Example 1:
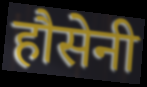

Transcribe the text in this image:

हौसेनी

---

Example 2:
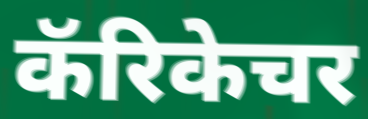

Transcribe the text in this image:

कॅरिकेचर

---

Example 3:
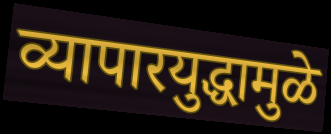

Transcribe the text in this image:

व्यापारयुद्धामुळे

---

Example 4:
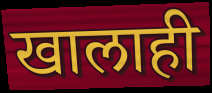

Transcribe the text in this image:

खालाही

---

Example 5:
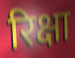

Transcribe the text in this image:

रिक्षा